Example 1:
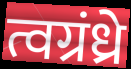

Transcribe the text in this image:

त्वग्रंध्रे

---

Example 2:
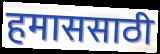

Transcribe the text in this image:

हमाससाठी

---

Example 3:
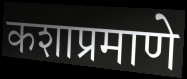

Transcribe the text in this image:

कशाप्रमाणे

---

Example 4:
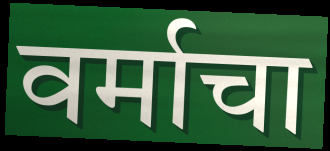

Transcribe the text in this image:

वर्माचा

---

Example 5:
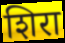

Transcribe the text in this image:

शिरा